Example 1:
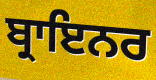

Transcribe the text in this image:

ਬ੍ਰਾਇਨਰ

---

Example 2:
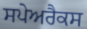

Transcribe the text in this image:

ਸਪੇਅਰੈਕਸ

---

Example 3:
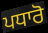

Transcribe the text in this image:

ਪਧਾਰੋ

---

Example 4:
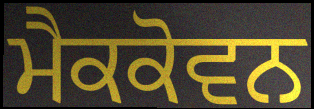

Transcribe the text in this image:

ਮੈਕਕੋਵਨ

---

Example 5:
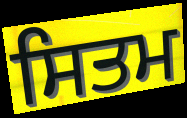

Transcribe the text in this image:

ਸਿਤਮ